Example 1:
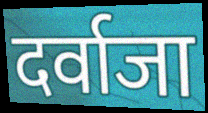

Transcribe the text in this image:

दर्वाजा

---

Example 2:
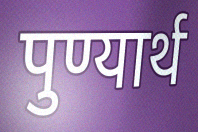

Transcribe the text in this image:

पुण्यार्थ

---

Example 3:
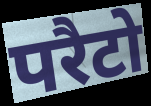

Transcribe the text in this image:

परैटो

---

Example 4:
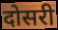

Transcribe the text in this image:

दोसरी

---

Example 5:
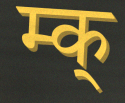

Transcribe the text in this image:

म्क्